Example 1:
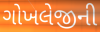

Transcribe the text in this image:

ગોખલેજીની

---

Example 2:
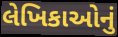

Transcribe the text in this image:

લેખિકાઓનું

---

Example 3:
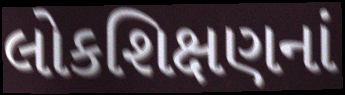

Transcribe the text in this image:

લોકશિક્ષણનાં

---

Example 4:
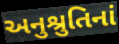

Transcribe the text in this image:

અનુશ્રુતિનાં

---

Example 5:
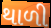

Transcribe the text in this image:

થાળી